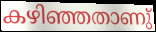
കഴിഞ്ഞതാണു്